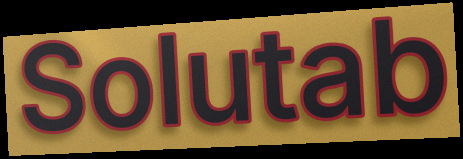
Solutab